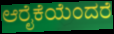
ಆರೈಕೆಯೆಂದರೆ